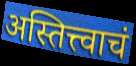
अस्तित्त्वाचं